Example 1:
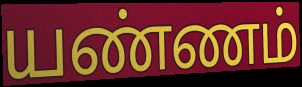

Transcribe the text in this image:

யண்ணம்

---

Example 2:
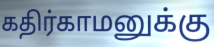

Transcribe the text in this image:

கதிர்காமனுக்கு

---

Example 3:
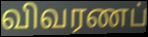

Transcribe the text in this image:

விவரணப்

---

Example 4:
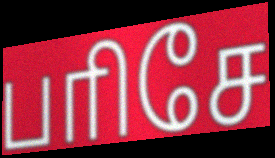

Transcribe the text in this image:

பரிசே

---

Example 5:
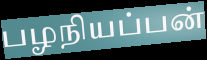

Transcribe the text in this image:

பழநியப்பன்